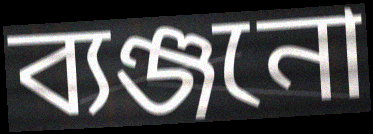
ব্যঞ্জনো